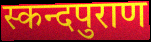
स्कन्दपुराण